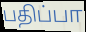
பதிப்பா